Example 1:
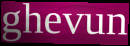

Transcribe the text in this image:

ghevun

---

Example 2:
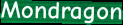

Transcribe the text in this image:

Mondragon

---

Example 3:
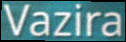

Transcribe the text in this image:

Vazira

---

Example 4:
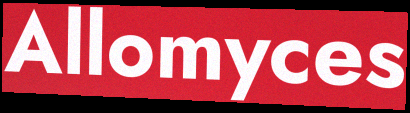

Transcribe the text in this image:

Allomyces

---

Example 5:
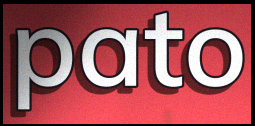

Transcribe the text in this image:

pato